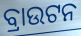
ବ୍ରାଉଟନ